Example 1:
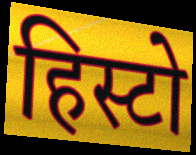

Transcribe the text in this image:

हिस्टो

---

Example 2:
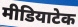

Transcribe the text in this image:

मीडियाटेक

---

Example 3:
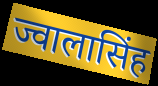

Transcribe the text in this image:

ज्वालासिंह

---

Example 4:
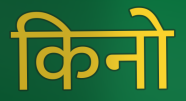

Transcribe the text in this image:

किनो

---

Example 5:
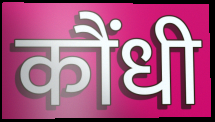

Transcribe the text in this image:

कौंधी